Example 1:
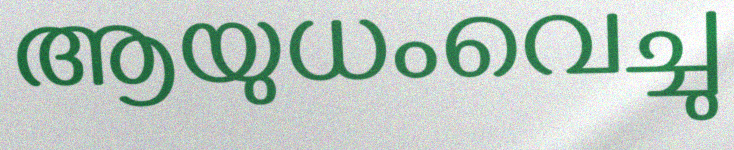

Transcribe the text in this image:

ആയുധംവെച്ചു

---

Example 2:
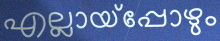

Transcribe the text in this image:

എല്ലായ്പ്പോഴും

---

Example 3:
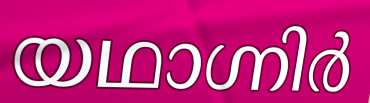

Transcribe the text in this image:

യഥാഗ്നിർ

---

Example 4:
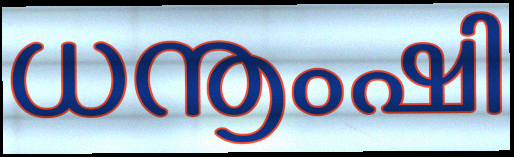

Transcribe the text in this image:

ധനൂംഷി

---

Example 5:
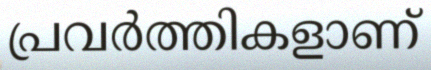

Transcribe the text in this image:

പ്രവർത്തികളാണ്